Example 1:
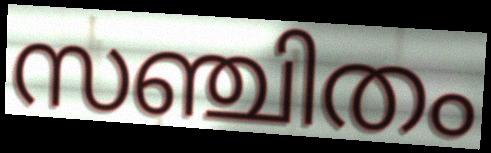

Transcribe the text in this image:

സഞ്ചിതം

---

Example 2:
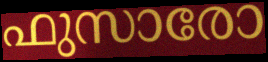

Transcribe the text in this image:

ഫുസാരോ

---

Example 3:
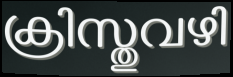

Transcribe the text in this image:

ക്രിസ്തുവഴി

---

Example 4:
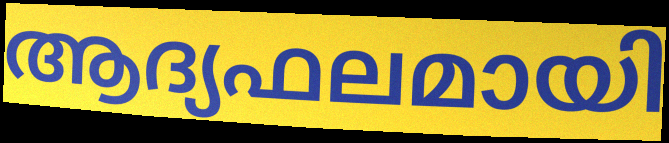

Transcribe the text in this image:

ആദ്യഫലമായി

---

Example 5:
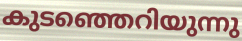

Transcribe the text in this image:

കുടഞ്ഞെറിയുന്നു